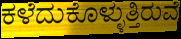
ಕಳೆದುಕೊಳ್ಳುತ್ತಿರುವೆ